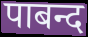
पाबन्द